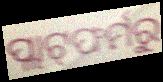
ପ୍ଲାଟ୍‌ଫର୍ମରୁ